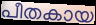
പീതകായ